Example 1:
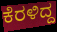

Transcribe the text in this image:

ಕೆರಳಿದ್ದ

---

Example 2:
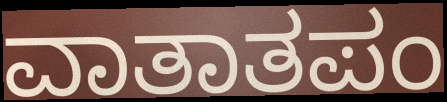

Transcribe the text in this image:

ವಾತಾತಪಂ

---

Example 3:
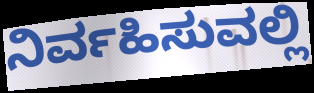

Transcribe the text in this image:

ನಿರ್ವಹಿಸುವಲ್ಲಿ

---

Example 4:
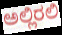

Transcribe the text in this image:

ಅಲ್ಲಿರಲಿ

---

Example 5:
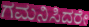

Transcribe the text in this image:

ಗಮನಿಸಿದರೇ